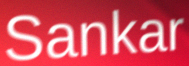
Sankar